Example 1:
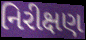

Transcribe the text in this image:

નિરીક્ષણ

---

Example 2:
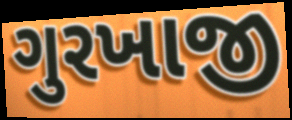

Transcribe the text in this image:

ગુરખાજી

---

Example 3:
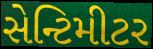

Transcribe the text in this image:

સેન્ટિમીટર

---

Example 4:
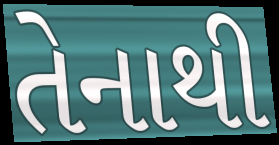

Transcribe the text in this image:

તેનાથી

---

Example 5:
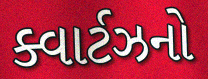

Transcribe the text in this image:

ક્વાર્ટઝનો